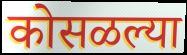
कोसळल्या